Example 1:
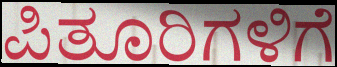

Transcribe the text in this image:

ಪಿತೂರಿಗಳಿಗೆ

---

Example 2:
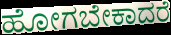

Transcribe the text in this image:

ಹೋಗಬೇಕಾದರೆ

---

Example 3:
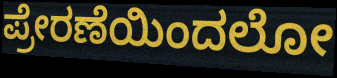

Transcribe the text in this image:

ಪ್ರೇರಣೆಯಿಂದಲೋ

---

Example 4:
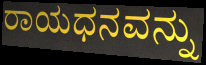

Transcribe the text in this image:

ರಾಯಧನವನ್ನು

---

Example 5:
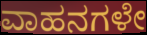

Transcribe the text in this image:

ವಾಹನಗಳೇ